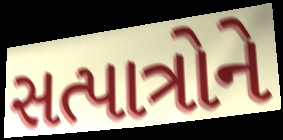
સત્પાત્રોને